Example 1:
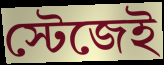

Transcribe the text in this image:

স্টেজেই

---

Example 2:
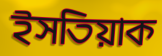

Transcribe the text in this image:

ইসতিয়াক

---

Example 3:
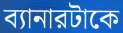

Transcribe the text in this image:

ব্যানারটাকে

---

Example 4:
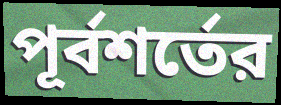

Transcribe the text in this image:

পূর্বশর্তের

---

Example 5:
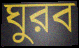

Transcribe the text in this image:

ঘুরব